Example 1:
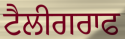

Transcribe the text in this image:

ਟੈਲੀਗਰਾਫ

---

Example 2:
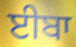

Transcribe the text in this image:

ਈਬਾ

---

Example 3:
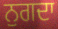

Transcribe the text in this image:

ਨੁਗਦਾ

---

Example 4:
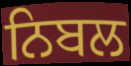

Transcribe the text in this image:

ਨਿਬਲ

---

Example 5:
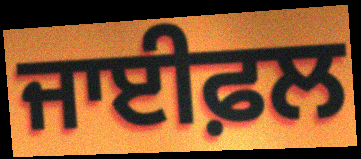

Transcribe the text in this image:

ਜਾਈਫ਼ਲ